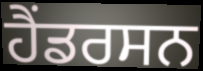
ਹੈਂਡਰਸਨ